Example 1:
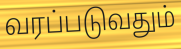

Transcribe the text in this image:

வரப்படுவதும்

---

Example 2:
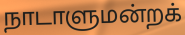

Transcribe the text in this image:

நாடாளுமன்றக்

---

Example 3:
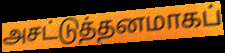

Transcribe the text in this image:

அசட்டுத்தனமாகப்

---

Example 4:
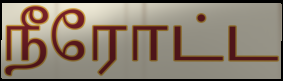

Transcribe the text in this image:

நீரோட்ட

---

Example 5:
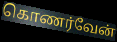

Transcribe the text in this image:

கொணர்வேன்